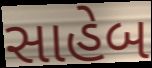
સાહેબ